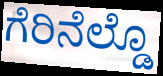
ಗೆರಿನೆಲ್ಡೊ